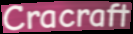
Cracraft